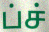
ப்ச்